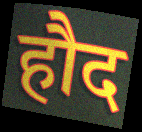
हौद